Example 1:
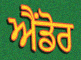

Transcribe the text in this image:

ਐਂਡੋਰ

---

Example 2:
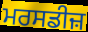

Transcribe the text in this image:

ਮਰਸਡੀਜ਼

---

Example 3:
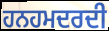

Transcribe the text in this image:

ਹਨਹਮਦਰਦੀ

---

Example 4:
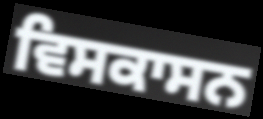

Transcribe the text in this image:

ਵਿਸਕਾਸਨ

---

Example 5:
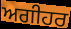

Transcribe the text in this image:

ਅਗੀਹਰ